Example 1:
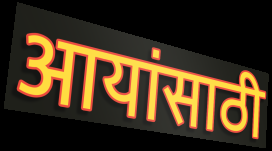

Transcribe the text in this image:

आयांसाठी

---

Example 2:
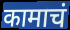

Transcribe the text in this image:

कामाचं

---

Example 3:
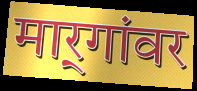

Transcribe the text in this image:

मार्गांवर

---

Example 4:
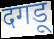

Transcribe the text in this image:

दगडू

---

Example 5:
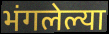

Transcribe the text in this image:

भंगलेल्या